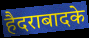
हैदराबादके